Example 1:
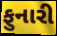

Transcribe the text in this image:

ફુનારી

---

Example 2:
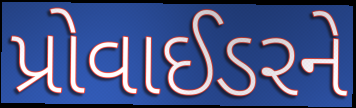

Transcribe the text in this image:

પ્રોવાઈડરને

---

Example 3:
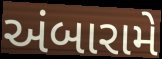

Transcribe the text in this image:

અંબારામે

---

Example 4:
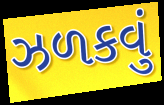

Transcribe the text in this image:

ઝળકવું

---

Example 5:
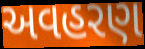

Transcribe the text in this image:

અવહરણ